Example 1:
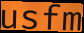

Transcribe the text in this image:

usfm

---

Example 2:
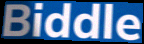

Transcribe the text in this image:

Biddle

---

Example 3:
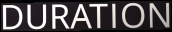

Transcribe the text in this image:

DURATION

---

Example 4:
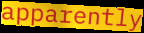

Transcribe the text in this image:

apparently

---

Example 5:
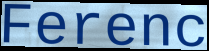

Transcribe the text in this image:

Ferenc